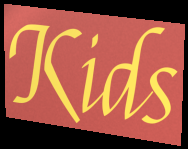
Kids